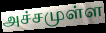
அச்சமுள்ள